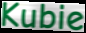
Kubie